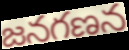
జనగణన